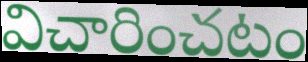
విచారించటం